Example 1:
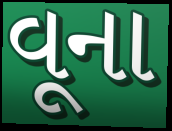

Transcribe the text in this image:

વૂના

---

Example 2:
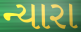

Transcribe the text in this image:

ન્યારા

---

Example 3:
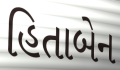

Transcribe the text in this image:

હિતાબેન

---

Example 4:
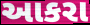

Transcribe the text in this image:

આકરા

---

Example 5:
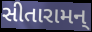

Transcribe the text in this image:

સીતારામન્